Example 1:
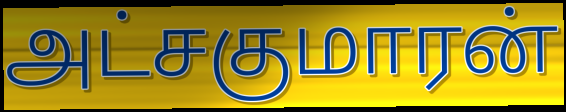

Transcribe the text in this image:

அட்சகுமாரன்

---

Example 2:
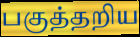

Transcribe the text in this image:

பகுத்தறிய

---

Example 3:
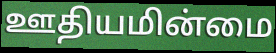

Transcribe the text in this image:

ஊதியமின்மை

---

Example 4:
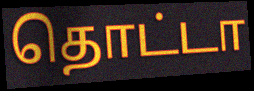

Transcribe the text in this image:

தொட்டா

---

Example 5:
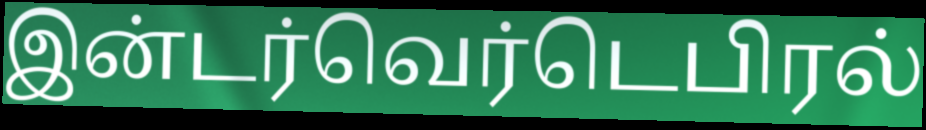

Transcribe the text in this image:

இன்டர்வெர்டெபிரல்